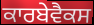
ਕਾਰਬੇਵੈਕਸ